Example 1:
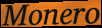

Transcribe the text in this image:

Monero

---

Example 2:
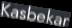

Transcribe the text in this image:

Kasbekar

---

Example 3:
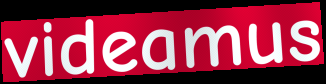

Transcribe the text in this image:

videamus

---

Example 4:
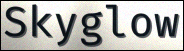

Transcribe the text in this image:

Skyglow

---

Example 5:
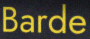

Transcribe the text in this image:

Barde